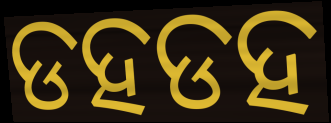
ଡହଡହ